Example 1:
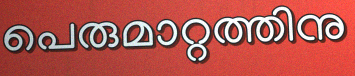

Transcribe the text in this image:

പെരുമാറ്റത്തിനു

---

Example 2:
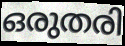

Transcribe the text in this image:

ഒരുതരി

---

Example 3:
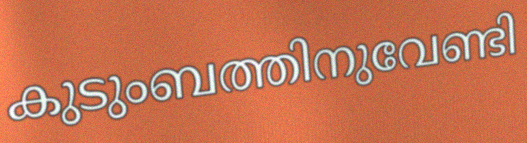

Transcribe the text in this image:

കുടുംബത്തിനുവേണ്ടി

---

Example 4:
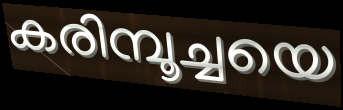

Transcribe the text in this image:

കരിമ്പൂച്ചയെ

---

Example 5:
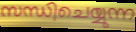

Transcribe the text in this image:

സന്ധിചെയ്യുന്ന